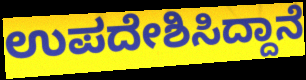
ಉಪದೇಶಿಸಿದ್ದಾನೆ